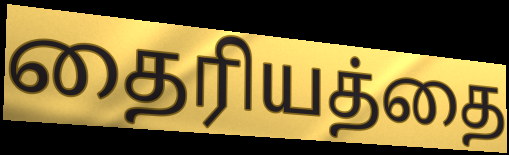
தைரியத்தை